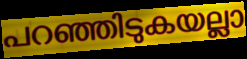
പറഞ്ഞിടുകയല്ലാ